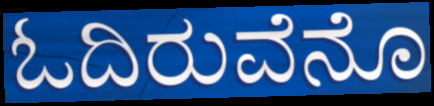
ಓದಿರುವೆನೊ